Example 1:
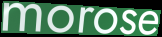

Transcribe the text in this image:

morose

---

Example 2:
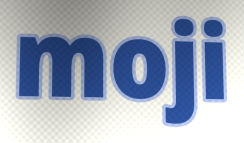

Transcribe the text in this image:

moji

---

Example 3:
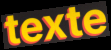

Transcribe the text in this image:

texte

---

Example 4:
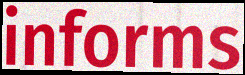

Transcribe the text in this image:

informs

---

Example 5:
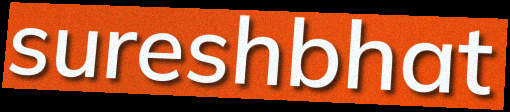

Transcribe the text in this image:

sureshbhat